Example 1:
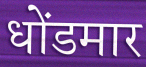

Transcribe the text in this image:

धोंडमार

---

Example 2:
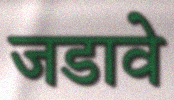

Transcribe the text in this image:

जडावे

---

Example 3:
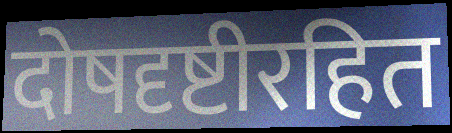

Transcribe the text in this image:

दोषदृष्टीरहित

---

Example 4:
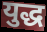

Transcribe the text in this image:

युद्ध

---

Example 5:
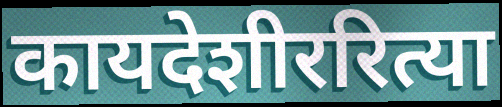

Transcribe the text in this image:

कायदेशीररित्या